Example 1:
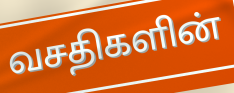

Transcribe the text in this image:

வசதிகளின்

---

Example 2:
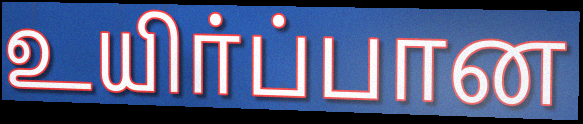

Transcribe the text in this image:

உயிர்ப்பான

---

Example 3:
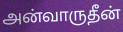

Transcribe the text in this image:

அன்வாருதீன்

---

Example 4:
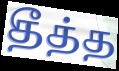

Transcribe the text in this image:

தீத்த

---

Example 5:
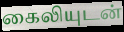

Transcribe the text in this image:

கைலியுடன்